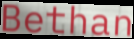
Bethan